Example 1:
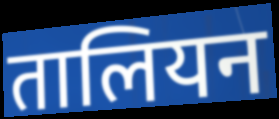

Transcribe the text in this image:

तालियन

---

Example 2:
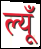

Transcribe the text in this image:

ल्यूँ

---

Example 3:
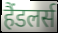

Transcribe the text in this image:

हैंडलर्स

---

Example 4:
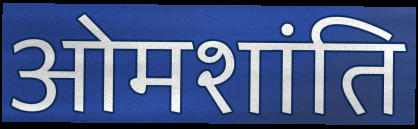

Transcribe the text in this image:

ओमशांति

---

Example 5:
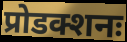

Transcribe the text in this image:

प्रोडक्शनः